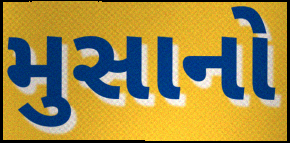
મુસાનો